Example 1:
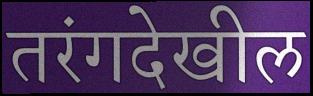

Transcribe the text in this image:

तरंगदेखील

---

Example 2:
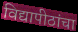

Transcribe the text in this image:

विद्यापीठांचा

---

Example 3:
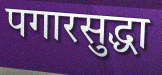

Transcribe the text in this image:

पगारसुद्धा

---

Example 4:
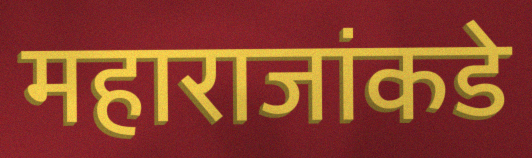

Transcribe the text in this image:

महाराजांकडे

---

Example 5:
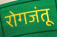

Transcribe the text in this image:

रोगजंतू